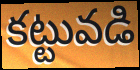
కట్టువడి